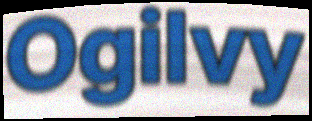
Ogilvy